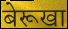
बेरूखा